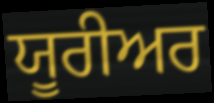
ਯੂਰੀਅਰ